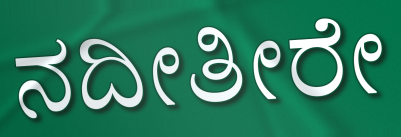
ನದೀತೀರೇ